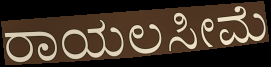
ರಾಯಲಸೀಮೆ